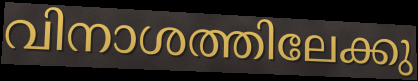
വിനാശത്തിലേക്കു